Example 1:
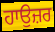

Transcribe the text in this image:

ਹਾਉਜ਼ਰ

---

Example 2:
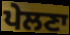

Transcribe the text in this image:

ਪੇਲਣਾ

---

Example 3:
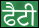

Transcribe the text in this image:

ਫੈਟੀ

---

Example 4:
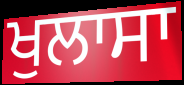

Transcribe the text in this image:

ਖੁਲਾਸਾ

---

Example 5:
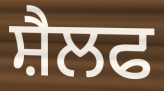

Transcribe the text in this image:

ਸ਼ੈਲਫ